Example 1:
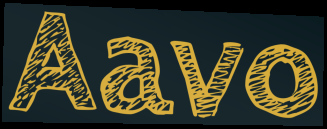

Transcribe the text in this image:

Aavo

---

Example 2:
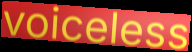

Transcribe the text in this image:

voiceless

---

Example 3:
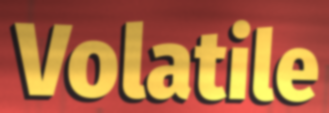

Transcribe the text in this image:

Volatile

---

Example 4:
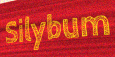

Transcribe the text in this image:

Silybum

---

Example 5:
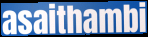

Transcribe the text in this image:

asaithambi